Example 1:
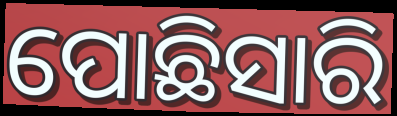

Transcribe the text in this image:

ପୋଛିସାରି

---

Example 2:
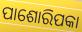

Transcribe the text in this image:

ପାଶୋରିପକା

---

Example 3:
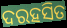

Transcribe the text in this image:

ଦରହସିତ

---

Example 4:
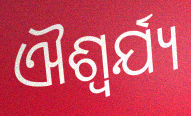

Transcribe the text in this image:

ଐଶ୍ଵର୍ଯ୍ୟ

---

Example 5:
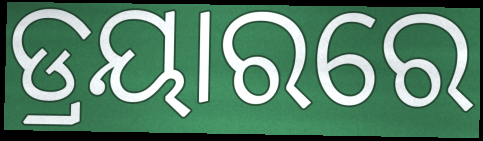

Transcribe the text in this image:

ଡ୍ରୟାରରେ